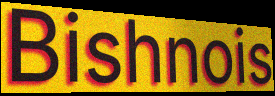
Bishnois